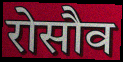
रोसौव